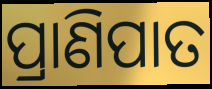
ପ୍ରାଣିପାତ